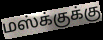
மஸ்க்குக்கு